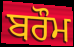
ਬਰੌਮ